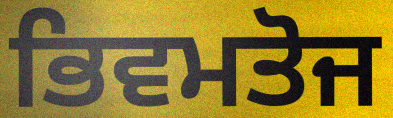
ਭਿਵਮਤੋਜ